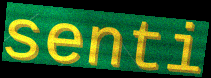
senti